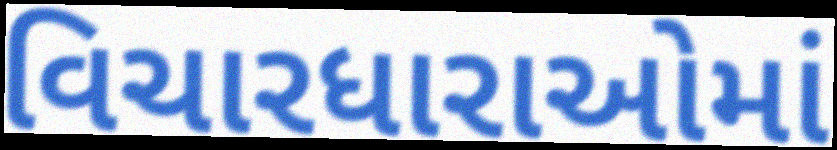
વિચારધારાઓમાં